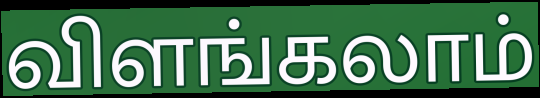
விளங்கலாம்